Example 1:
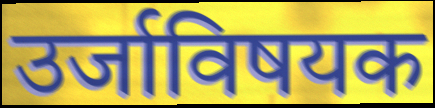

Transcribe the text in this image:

उर्जाविषयक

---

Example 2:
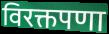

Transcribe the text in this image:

विरक्तपणा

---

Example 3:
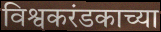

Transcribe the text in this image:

विश्वकरंडकाच्या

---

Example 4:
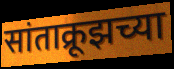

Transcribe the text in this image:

सांताक्रूझच्या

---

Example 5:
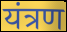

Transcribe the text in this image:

यंत्रण